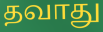
தவாது